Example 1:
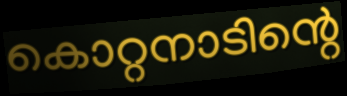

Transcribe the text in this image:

കൊറ്റനാടിന്റെ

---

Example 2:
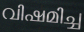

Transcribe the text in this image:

വിഷമിച്ച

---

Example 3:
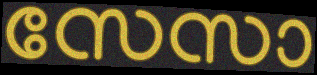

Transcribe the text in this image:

സേസാ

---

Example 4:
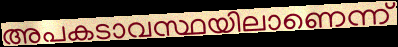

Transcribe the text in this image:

അപകടാവസ്ഥയിലാണെന്ന്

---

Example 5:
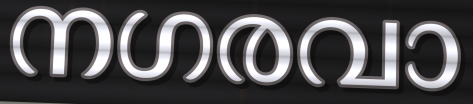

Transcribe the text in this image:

നഗരവാ